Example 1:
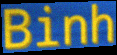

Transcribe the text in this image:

Binh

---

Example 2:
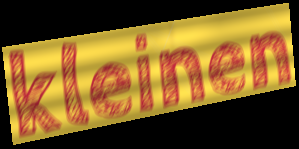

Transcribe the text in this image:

kleinen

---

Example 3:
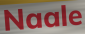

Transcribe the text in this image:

Naale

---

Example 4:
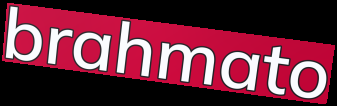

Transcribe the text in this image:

brahmato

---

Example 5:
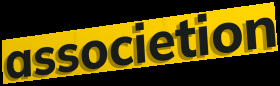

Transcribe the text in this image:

associetion